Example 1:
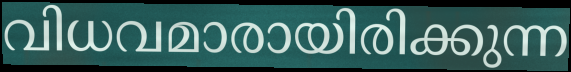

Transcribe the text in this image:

വിധവമാരായിരിക്കുന്ന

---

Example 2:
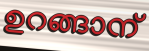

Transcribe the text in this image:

ഉറങ്ങാന്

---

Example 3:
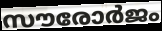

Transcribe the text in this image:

സൗരോർജം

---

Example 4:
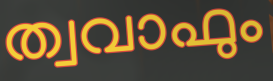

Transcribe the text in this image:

ത്വവാഫും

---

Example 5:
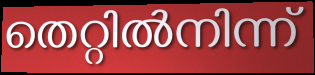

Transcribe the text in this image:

തെറ്റിൽനിന്ന്